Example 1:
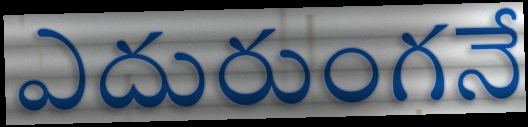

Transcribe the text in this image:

ఎదురుంగనే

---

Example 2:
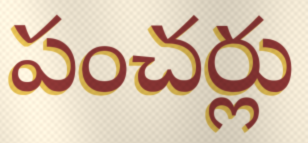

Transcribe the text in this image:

పంచర్లు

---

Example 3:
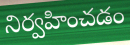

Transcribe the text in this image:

నిర్వహించడం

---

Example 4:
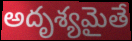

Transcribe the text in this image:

అదృశ్యమైతే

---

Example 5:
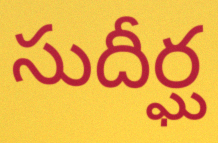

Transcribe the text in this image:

సుదీర్ఘ